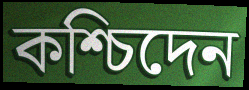
কশ্চিদেন